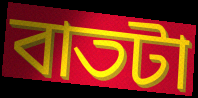
বাতটা